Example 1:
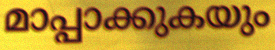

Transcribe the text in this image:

മാപ്പാക്കുകയും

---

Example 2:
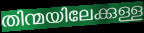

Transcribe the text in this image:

തിന്മയിലേക്കുള്ള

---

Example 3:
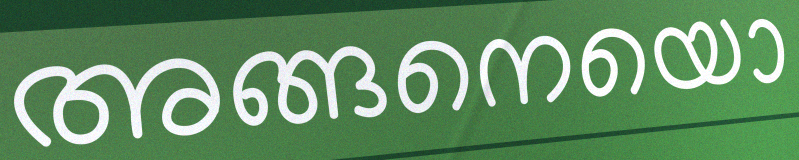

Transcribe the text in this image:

അങ്ങനെയൊ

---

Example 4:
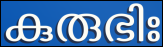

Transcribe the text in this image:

കുരുഭിഃ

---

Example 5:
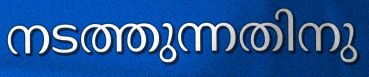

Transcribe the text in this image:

നടത്തുന്നതിനു